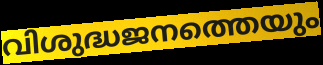
വിശുദ്ധജനത്തെയും